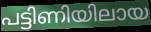
പട്ടിണിയിലായ